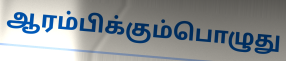
ஆரம்பிக்கும்பொழுது